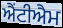
ਐਂਟੀਐਮ